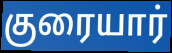
குரையார்